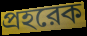
প্রহরেক